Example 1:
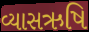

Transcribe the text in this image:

વ્યાસઋષિ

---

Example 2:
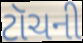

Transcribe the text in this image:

ટૉચની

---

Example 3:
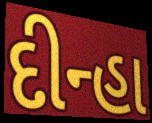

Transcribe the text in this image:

દીન્હા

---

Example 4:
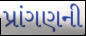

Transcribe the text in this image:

પ્રાંગણની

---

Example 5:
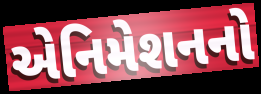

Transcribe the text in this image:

એનિમેશનનો